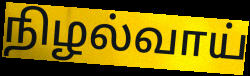
நிழல்வாய்